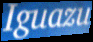
Iguazu